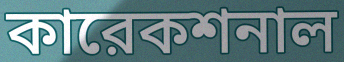
কারেকশনাল